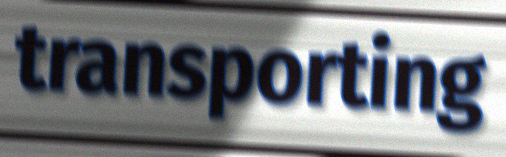
transporting